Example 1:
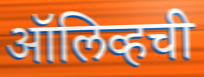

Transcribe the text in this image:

ऑलिव्हची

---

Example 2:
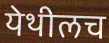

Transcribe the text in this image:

येथीलच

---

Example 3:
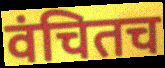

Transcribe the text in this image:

वंचितच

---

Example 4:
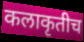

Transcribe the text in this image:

कलाकृतीच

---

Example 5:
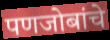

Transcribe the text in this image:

पणजोबांचे